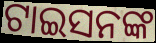
ଟାଇସନଙ୍କ